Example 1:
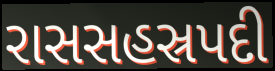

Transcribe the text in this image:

રાસસહસ્રપદી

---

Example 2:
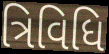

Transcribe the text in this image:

ત્રિવિધિ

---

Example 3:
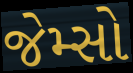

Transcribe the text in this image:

જેમ્સો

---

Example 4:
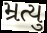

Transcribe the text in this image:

મ્રત્યુ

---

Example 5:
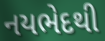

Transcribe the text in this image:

નયભેદથી